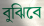
বুঝিবে